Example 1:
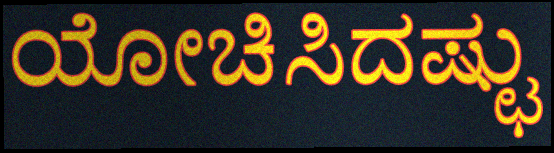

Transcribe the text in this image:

ಯೋಚಿಸಿದಷ್ಟು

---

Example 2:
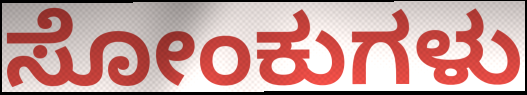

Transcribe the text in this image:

ಸೋಂಕುಗಳು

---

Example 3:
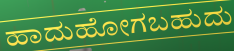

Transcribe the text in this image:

ಹಾದುಹೋಗಬಹುದು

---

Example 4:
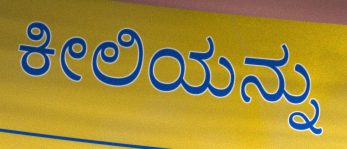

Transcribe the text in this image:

ಕೀಲಿಯನ್ನು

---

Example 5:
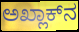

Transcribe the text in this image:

ಅಖ್ಲಾಕ್‍ನ